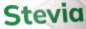
Stevia